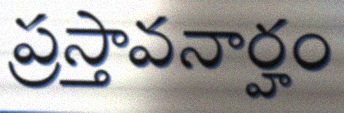
ప్రస్తావనార్హం